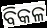
ବିକଳ